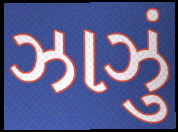
ઝાઝું